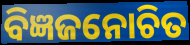
ବିଜ୍ଞଜନୋଚିତ